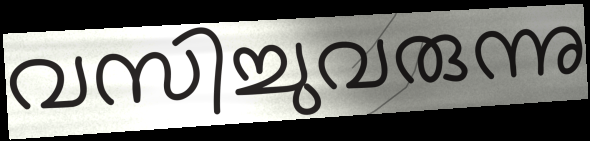
വസിച്ചുവരുന്നു